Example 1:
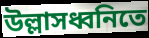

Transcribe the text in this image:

উল্লাসধ্বনিতে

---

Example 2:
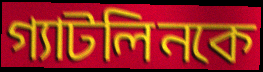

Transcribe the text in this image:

গ্যাটলিনকে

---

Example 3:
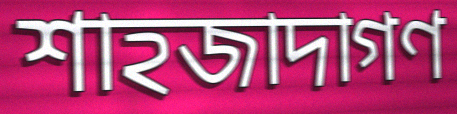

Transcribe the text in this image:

শাহজাদাগণ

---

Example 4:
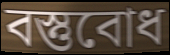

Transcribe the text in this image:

বস্তুবোধ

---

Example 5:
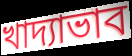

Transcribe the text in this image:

খাদ্যাভাব